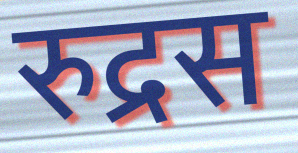
रुद्रस